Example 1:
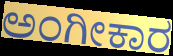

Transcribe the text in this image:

ಅಂಗೀಕಾರ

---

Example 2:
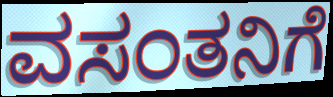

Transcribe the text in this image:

ವಸಂತನಿಗೆ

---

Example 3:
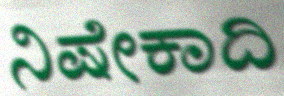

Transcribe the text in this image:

ನಿಷೇಕಾದಿ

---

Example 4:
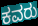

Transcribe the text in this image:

ಕವರು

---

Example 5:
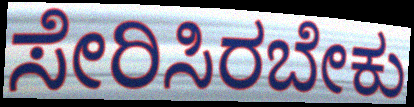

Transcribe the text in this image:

ಸೇರಿಸಿರಬೇಕು